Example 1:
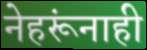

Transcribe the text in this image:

नेहरूंनाही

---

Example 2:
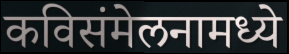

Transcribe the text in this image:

कविसंमेलनामध्ये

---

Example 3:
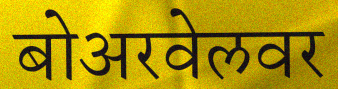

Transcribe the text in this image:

बोअरवेलवर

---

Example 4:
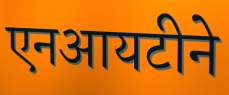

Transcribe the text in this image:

एनआयटीने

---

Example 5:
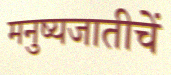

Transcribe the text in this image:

मनुष्यजातीचें